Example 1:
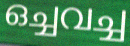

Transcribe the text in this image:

ഒച്ചവച്ച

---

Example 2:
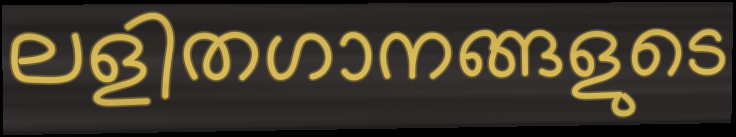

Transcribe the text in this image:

ലളിതഗാനങ്ങളുടെ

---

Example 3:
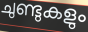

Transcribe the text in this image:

ചുണ്ടുകളും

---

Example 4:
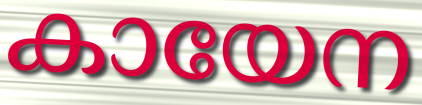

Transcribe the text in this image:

കായേന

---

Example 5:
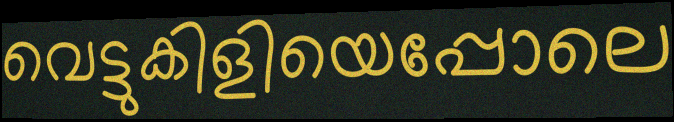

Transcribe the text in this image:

വെട്ടുകിളിയെപ്പോലെ